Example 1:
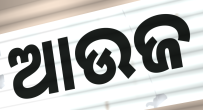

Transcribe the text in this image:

ଆଉଜ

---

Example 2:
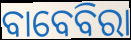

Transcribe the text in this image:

ବାବେବିରା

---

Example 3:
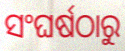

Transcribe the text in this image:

ସଂଘର୍ଷଠାରୁ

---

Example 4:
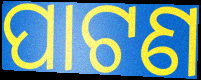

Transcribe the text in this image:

ପାଟଣ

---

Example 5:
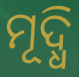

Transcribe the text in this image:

ମୂଦ୍ଧି